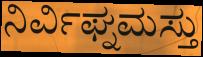
ನಿರ್ವಿಘ್ನಮಸ್ತು